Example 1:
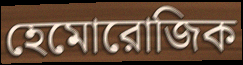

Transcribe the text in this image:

হেমোরোজিক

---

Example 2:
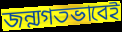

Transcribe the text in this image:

জন্মগতভাবেই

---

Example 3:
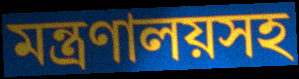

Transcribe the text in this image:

মন্ত্রণালয়সহ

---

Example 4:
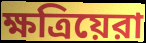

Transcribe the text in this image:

ক্ষত্রিয়েরা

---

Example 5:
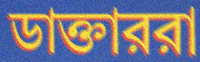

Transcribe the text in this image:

ডাক্তাররা